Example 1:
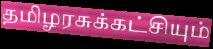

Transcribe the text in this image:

தமிழரசுக்கட்சியும்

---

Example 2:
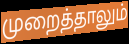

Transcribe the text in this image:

முறைத்தாலும்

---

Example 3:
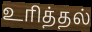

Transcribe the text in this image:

உரித்தல்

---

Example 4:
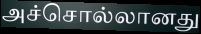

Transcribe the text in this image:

அச்சொல்லானது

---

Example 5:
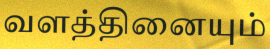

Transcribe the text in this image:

வளத்தினையும்